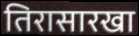
तिरासारखा